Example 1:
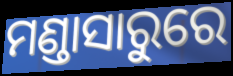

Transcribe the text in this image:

ମଣ୍ଡାସାରୁରେ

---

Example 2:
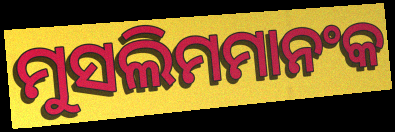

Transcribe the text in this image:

ମୁସଲିମମାନଂକ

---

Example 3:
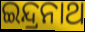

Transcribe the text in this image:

ଇନ୍ଦ୍ରନାଥ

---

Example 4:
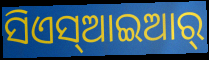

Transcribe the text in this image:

ସିଏସ୍ଆଇଆର୍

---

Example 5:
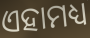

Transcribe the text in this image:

ଏହାମଧ୍ୟ